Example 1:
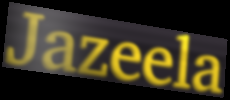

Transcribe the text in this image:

Jazeela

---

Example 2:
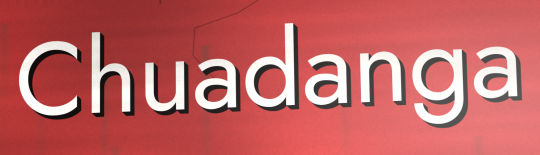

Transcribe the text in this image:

Chuadanga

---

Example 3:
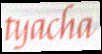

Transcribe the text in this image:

tyacha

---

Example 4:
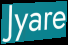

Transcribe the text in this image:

Jyare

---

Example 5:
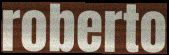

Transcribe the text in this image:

roberto